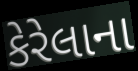
કેરેલાના